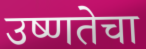
उष्णतेचा